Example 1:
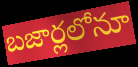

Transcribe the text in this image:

బజార్లలోనూ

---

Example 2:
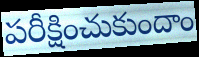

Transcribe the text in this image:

పరీక్షించుకుందాం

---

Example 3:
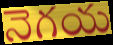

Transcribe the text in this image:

నెగయ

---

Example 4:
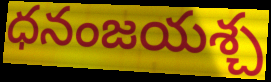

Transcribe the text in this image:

ధనంజయశ్చ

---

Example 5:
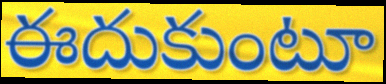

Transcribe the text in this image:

ఈదుకుంటూ